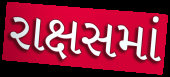
રાક્ષસમાં